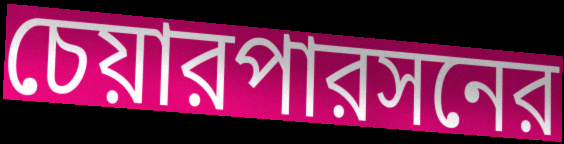
চেয়ারপারসনের